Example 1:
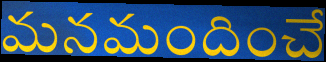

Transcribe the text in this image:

మనమందించే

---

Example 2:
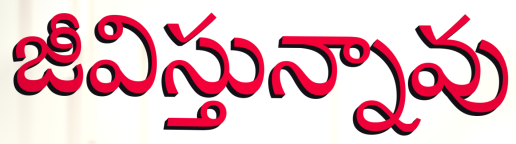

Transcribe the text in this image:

జీవిస్తున్నావు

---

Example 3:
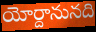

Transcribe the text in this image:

యోర్దానునది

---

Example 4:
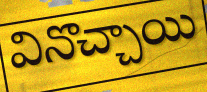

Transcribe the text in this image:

వినొచ్చాయి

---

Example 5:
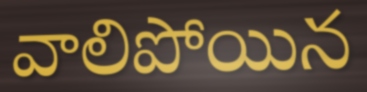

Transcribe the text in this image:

వాలిపోయిన